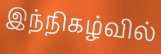
இந்நிகழ்வில்